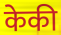
केकी